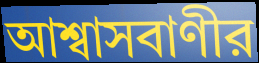
আশ্বাসবাণীর